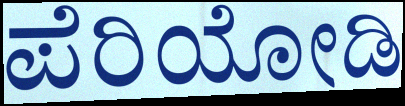
ಪೆರಿಯೋಡಿ